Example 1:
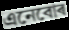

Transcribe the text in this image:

এনেবোৰ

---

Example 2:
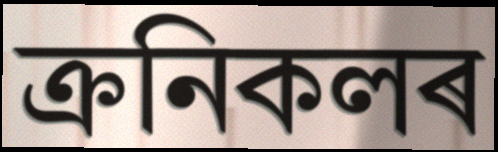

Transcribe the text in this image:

ক্ৰনিকলৰ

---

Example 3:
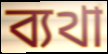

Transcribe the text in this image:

ব্যথা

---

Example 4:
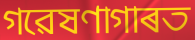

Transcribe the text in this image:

গৱেষণাগাৰত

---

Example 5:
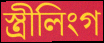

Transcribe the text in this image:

স্ত্ৰীলিংগ